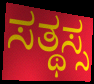
ಸತ್ಥಸ್ಸ